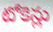
టోకెన్లు